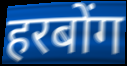
हरबोंग